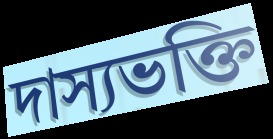
দাস্যভক্তি